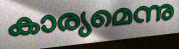
കാര്യമെന്നു